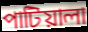
পাটিয়ালা